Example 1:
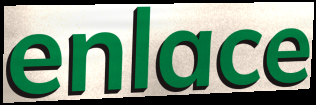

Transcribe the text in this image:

enlace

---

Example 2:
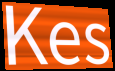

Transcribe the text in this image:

Kes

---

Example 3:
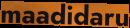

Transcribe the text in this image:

maadidaru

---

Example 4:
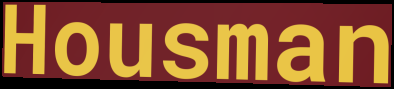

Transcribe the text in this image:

Housman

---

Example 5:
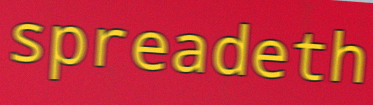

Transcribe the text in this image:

spreadeth